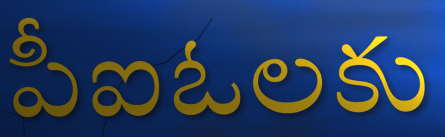
పీఐఓలకు